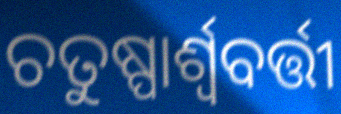
ଚତୁଷ୍ପାର୍ଶ୍ୱବର୍ତ୍ତୀ